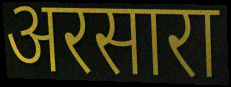
अरसारा